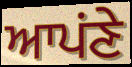
ਆਪਂਣੇ